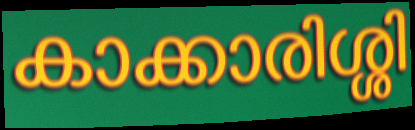
കാക്കാരിശ്ശി